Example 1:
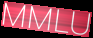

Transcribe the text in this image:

MMLU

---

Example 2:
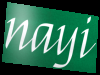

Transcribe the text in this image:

nayi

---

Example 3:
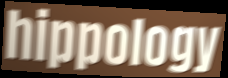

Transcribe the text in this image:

hippology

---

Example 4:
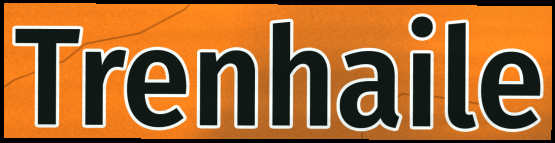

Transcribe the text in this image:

Trenhaile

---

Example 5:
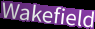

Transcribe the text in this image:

Wakefield